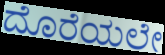
ದೊರೆಯಲೇ